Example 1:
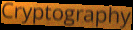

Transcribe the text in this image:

Cryptography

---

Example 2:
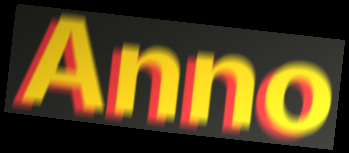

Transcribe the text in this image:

Anno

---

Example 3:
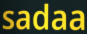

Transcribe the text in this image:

sadaa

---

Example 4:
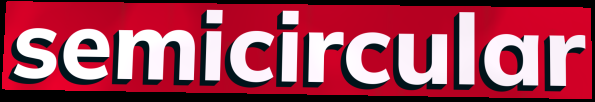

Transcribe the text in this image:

semicircular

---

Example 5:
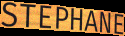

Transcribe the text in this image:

STEPHANE